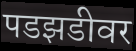
पडझडीवर